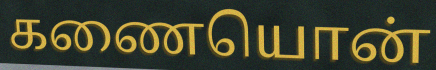
கணையொன்